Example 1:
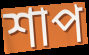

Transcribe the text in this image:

শাপ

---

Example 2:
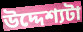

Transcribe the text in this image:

উদ্দেশ্যটা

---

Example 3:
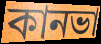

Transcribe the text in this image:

কানভা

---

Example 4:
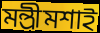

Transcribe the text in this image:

মন্ত্রীমশাই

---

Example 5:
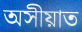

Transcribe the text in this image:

অসীয়াত